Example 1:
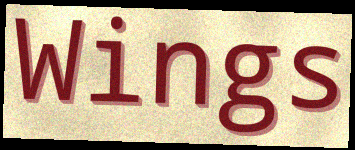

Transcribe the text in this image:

Wings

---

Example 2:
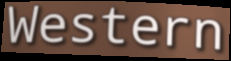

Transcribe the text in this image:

Western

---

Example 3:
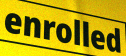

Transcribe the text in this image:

enrolled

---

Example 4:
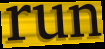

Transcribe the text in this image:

run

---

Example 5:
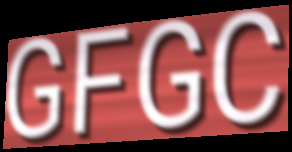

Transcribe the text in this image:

GFGC